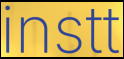
instt